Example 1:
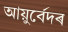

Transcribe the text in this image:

আয়ুৰ্বেদৰ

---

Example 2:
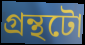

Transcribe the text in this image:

গ্ৰন্থটো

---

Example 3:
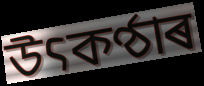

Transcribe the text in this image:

উৎকণ্ঠাৰ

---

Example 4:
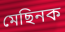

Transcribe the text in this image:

মেছিনক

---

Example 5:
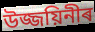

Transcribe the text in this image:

উজ্জয়িনীৰ